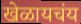
खेळायचंय